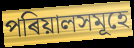
পৰিয়ালসমূহে